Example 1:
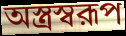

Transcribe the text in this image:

অস্ত্রস্বরূপ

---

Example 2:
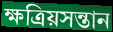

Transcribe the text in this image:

ক্ষত্রিয়সন্তান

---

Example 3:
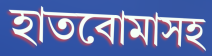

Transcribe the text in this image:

হাতবোমাসহ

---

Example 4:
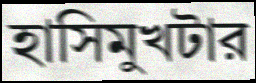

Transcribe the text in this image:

হাসিমুখটার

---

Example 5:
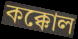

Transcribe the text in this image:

কক্কোল